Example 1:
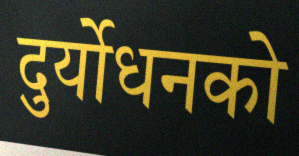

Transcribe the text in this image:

दुर्योधनको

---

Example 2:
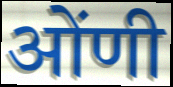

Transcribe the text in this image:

ओंणी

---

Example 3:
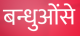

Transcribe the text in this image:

बन्धुओंसे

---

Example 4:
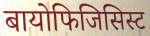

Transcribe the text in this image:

बायोफिजिसिस्ट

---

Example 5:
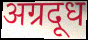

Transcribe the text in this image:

अग्रदूध